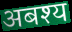
अबश्य